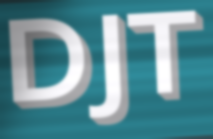
DJT